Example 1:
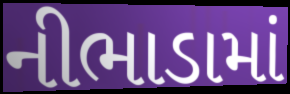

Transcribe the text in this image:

નીભાડામાં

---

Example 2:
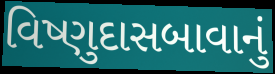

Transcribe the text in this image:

વિષ્ણુદાસબાવાનું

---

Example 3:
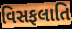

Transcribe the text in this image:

વિસફલાતિ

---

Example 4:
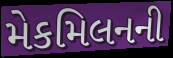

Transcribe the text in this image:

મેકમિલનની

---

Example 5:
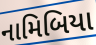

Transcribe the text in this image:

નામિબિયા